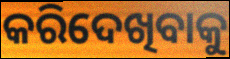
କରିଦେଖିବାକୁ